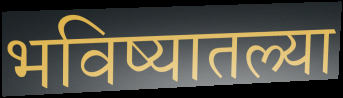
भविष्यातल्या